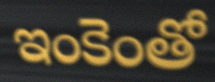
ఇంకెంతో